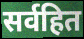
सर्वहित